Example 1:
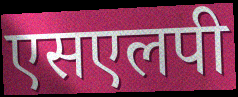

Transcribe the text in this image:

एसएलपी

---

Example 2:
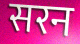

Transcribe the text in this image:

सरन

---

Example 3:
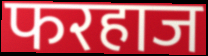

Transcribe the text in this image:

फरहाज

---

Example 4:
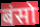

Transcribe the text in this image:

बंसो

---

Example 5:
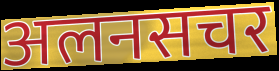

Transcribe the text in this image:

अलनसचर